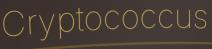
Cryptococcus